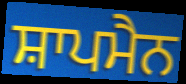
ਸ਼ਾਪਮੈਨ